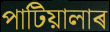
পাটিয়ালাৰ